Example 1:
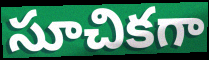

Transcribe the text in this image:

సూచికగా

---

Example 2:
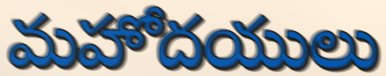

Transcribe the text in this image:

మహోదయులు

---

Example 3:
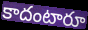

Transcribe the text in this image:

కాదంటారూ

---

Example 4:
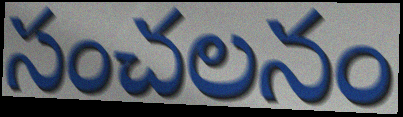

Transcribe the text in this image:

సంచలనం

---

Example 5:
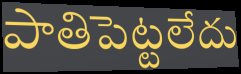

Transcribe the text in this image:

పాతిపెట్టలేదు